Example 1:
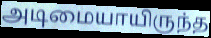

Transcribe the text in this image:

அடிமையாயிருந்த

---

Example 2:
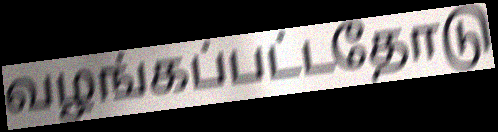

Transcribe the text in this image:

வழங்கப்பட்டதோடு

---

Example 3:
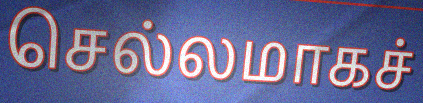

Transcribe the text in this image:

செல்லமாகச்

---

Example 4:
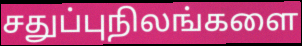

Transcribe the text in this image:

சதுப்புநிலங்களை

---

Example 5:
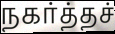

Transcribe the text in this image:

நகர்த்தச்